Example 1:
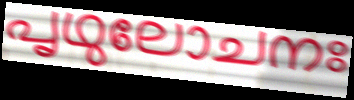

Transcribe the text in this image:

പൃഥുലോചനഃ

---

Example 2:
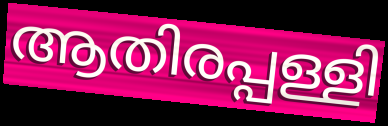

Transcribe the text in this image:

ആതിരപ്പള്ളി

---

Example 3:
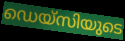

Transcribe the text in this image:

ഡെയ്സിയുടെ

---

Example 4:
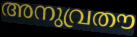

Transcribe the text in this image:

അനുവ്രതൗ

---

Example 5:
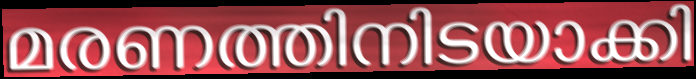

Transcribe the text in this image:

മരണത്തിനിടയാക്കി